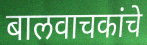
बालवाचकांचे